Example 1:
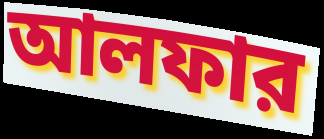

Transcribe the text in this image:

আলফার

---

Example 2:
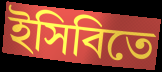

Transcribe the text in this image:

ইসিবিতে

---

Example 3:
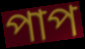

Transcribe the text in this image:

পাপ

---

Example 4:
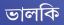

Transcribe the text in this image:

ভালকি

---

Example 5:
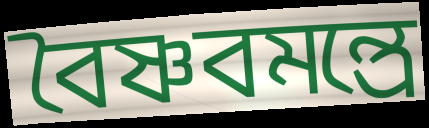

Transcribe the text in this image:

বৈষ্ণবমন্ত্রে